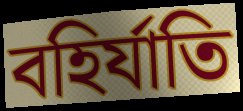
বহির্যাতি